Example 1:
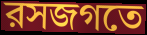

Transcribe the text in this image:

রসজগতে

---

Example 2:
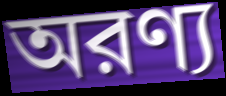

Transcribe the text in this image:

অরণ্য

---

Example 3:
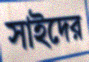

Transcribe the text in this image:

সাইদের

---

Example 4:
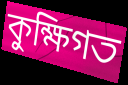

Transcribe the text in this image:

কুক্ষিগত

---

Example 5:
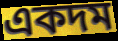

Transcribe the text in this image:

একদম